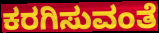
ಕರಗಿಸುವಂತೆ